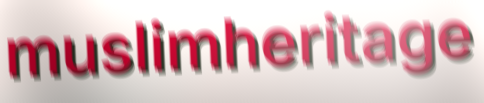
muslimheritage